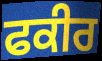
ਫਕੀਰ